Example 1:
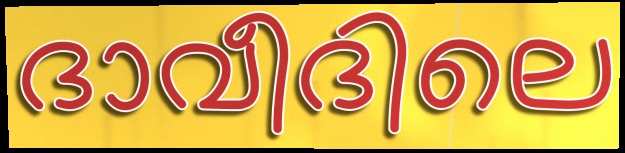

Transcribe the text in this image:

ദാവീദിലെ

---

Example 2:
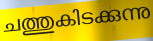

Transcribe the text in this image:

ചത്തുകിടക്കുന്നു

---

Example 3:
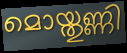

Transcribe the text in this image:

മൊയ്തുണ്ണി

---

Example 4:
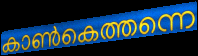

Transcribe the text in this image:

കാൺകെത്തന്നെ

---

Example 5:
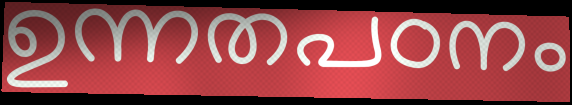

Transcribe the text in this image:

ഉന്നതപഠനം